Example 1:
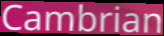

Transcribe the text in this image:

Cambrian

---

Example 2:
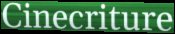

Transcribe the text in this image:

Cinecriture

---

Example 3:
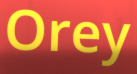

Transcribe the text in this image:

Orey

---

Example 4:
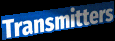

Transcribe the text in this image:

Transmitters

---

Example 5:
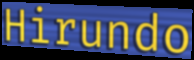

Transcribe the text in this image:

Hirundo